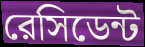
রেসিডেন্ট